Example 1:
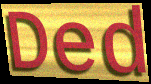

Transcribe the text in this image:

Ded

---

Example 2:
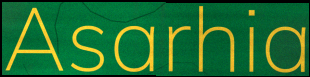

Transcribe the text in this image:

Asarhia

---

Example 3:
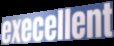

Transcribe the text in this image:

execellent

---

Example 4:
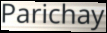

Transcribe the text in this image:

Parichay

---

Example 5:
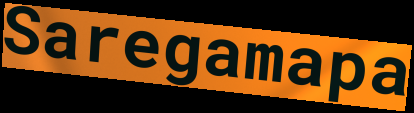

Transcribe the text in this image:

Saregamapa